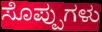
ಸೊಪ್ಪುಗಳು